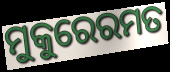
ମୁକୁରେରମତ